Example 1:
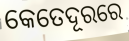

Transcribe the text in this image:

କେତେଦୂରରେ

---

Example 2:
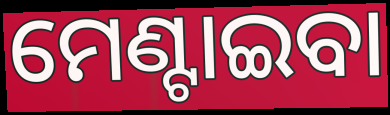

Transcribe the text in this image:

ମେଣ୍ଟାଇବା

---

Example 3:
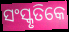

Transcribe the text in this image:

ସଂସ୍କୃତିକେ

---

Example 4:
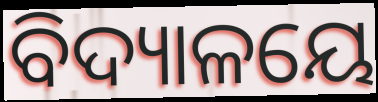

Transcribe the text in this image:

ବିଦ୍ୟାଳୟେ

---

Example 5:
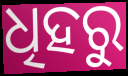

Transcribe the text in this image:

ଧିହରୁ